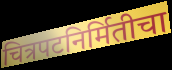
चित्रपटनिर्मितीचा